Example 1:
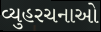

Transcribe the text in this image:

વ્યુહરચનાઓ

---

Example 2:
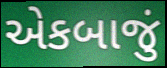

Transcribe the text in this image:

એકબાજું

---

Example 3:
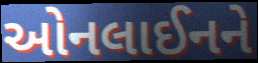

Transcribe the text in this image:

ઓનલાઈનને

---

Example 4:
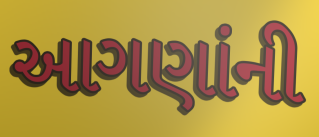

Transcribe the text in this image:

આગણાંની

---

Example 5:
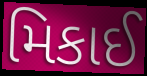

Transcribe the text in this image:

મિકાઈ